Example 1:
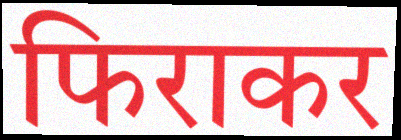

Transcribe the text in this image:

फिराकर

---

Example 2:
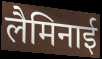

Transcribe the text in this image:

लैमिनाई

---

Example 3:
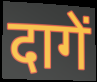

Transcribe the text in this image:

दागें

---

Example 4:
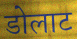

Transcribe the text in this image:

डोलाट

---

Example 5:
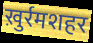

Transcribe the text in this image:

ख़ुर्रमशहर